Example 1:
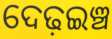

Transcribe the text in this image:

ଦେଢ଼ଇଞ୍ଚ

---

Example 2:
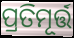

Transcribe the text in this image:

ପ୍ରତିମୂର୍ତ୍ତ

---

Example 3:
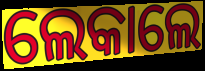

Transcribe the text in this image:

ଲେକାଲେ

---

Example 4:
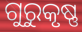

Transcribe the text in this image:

ଗୁରୁକୃଷ୍ଣ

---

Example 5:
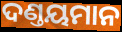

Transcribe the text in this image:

ଦଣ୍ତୟମାନ